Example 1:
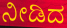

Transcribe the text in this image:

ನೀಡಿದ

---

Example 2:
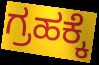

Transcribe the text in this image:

ಗ್ರಹಕ್ಕೆ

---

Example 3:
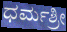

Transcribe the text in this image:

ಧರ್ಮಶ್ರೀ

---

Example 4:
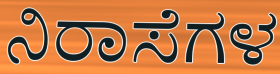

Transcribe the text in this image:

ನಿರಾಸೆಗಳ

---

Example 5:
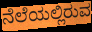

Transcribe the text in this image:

ನೆಲೆಯಲ್ಲಿರುವ